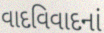
વાદવિવાદનાં